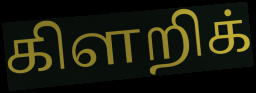
கிளறிக்